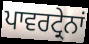
ਪਾਵਰਟ੍ਰੇਨਾਂ